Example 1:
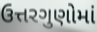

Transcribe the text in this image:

ઉત્તરગુણોમાં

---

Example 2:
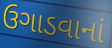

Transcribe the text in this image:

ઉગાડવાનાં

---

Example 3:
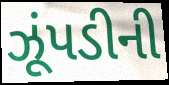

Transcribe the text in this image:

ઝૂંપડીની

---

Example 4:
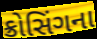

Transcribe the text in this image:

ક્રોસિંગના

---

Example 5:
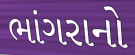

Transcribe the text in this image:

ભાંગરાનો